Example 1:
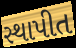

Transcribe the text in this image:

સ્થાપીત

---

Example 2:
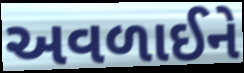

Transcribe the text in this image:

અવળાઈને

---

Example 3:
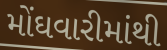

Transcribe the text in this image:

મોંઘવારીમાંથી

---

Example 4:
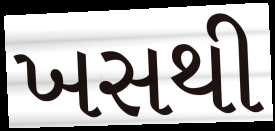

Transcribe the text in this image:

ખસથી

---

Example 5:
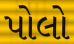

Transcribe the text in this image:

પોલો